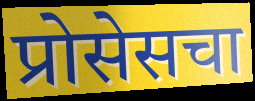
प्रोसेसचा